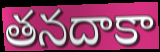
తనదాకా